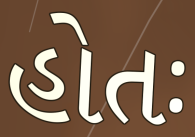
હોતઃ